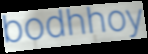
bodhhoy